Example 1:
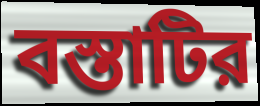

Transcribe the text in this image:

বস্তাটির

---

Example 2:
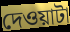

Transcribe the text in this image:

দেওয়াটা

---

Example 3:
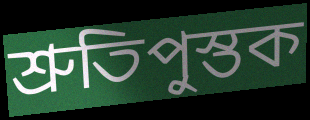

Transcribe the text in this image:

শ্রুতিপুস্তক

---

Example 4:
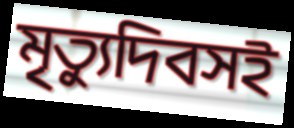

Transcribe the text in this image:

মৃত্যুদিবসই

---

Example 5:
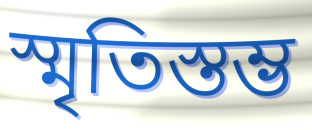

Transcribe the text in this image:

স্মৃতিস্তম্ভ